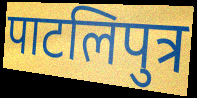
पाटलिपुत्र